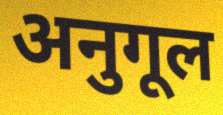
अनुगूल